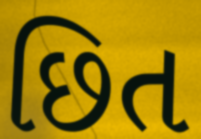
છિત